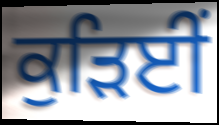
ਕੁੜਿਈਂ